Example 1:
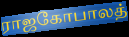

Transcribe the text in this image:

ராஜகோபாலத்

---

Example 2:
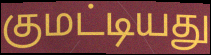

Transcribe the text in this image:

குமட்டியது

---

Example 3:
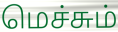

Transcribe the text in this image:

மெச்சும்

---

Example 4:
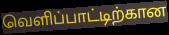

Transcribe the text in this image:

வெளிப்பாட்டிற்கான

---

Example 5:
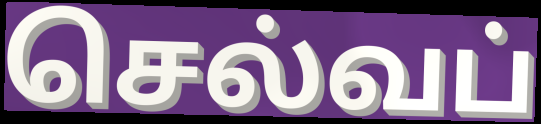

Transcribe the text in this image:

செல்வப்